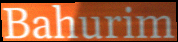
Bahurim